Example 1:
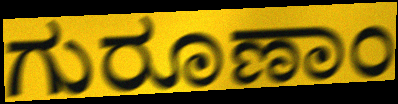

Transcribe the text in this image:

ಗುರೂಣಾಂ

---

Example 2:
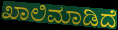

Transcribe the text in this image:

ಖಾಲಿಮಾಡಿದೆ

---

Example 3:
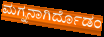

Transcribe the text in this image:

ಮಗ್ನನಾಗಿರ್ದೊಡಂ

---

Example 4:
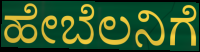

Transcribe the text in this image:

ಹೇಬೆಲನಿಗೆ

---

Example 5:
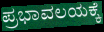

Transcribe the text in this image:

ಪ್ರಭಾವಲಯಕ್ಕೆ